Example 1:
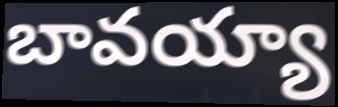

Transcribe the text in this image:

బావయ్యా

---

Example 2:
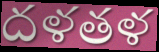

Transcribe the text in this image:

దళతళ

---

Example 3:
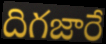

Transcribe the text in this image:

దిగజారే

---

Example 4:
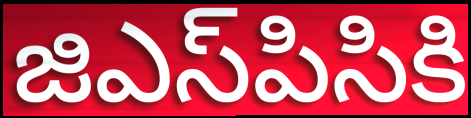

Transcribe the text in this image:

జిఎస్‌పిసికి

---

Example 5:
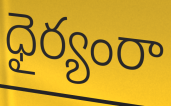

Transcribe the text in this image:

ధైర్యంరా